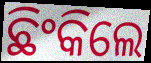
ଛିଂକିଲେ